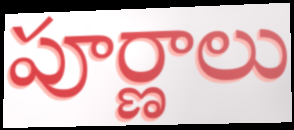
పూర్ణాలు